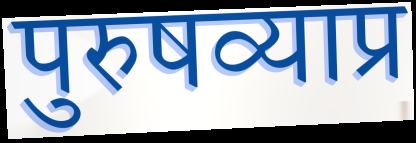
पुरुषव्याप्र